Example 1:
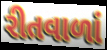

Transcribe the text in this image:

રીતવાળાં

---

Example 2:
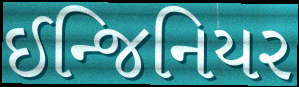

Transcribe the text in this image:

ઈન્જિનિયર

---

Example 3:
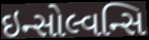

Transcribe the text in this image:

ઇન્સોલ્વન્સિ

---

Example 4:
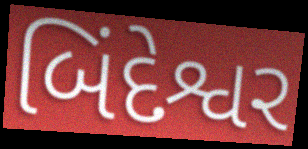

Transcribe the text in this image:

બિંદેશ્વર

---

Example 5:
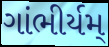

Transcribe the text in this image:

ગાંભીર્યમ્